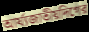
আর্য্যজাতীয়দিগের